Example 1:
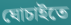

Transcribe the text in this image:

ঘোচাইতে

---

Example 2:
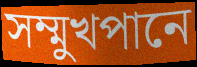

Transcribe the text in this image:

সম্মুখপানে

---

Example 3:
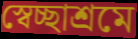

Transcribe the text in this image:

স্বেচ্ছাশ্রমে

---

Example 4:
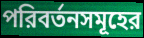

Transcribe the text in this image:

পরিবর্তনসমূহের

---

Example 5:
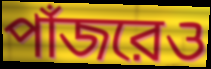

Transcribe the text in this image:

পাঁজরেও